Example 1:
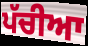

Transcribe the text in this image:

ਪੱਚੀਆ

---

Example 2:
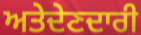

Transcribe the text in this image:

ਅਤੇਦੇਣਦਾਰੀ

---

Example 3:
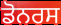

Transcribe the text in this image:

ਡੋਨਰਸ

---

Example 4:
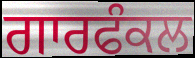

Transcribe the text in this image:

ਗਾਰਫੰਕਲ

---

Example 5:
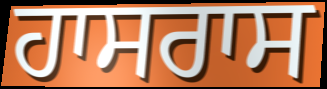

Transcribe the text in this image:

ਹਾਸਰਾਸ